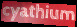
cyathium